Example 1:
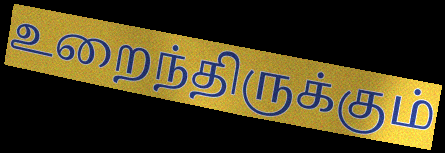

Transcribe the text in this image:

உறைந்திருக்கும்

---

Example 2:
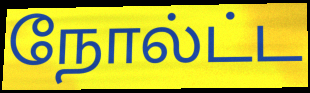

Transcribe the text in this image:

நோல்ட்ட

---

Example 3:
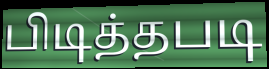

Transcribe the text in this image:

பிடித்தபடி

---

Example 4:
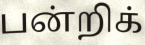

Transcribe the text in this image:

பன்றிக்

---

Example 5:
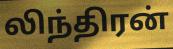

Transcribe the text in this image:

லிந்திரன்